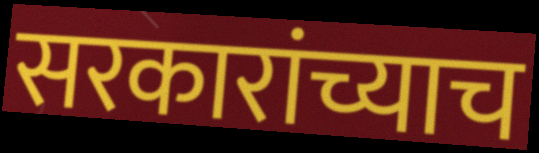
सरकारांच्याच